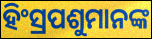
ହିଂସ୍ରପଶୁମାନଙ୍କ